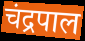
चंद्रपाल